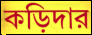
কড়িদার